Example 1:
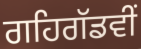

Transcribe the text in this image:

ਗਹਿਗੱਡਵੀਂ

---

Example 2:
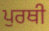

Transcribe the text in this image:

ਪੁਰਥੀ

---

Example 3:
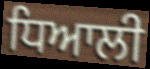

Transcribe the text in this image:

ਧਿਆਲੀ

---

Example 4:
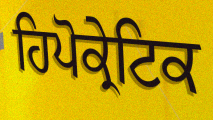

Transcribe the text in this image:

ਹਿਪੋਕ੍ਰੇਟਿਕ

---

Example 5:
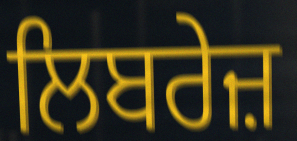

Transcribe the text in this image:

ਲਿਬਰੇਜ਼